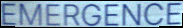
EMERGENCE